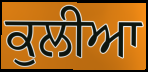
ਕੁਲੀਆ